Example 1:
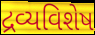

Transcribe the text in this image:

દ્રવ્યવિશેષ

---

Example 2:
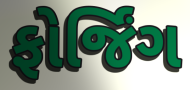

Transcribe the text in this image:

ફોર્જિંગ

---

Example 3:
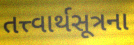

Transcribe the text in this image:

તત્ત્વાર્થસૂત્રના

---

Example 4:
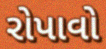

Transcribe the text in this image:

રોપાવો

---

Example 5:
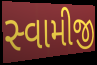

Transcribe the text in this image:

સ્વામીજી